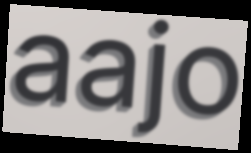
aajo